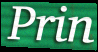
Prin